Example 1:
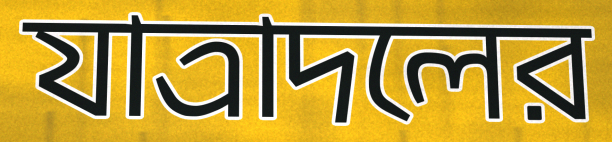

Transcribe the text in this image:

যাত্রাদলের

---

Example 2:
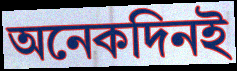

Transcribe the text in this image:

অনেকদিনই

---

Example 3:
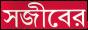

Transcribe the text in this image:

সজীবের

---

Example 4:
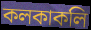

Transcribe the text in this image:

কলকাকলি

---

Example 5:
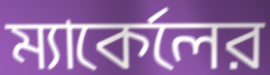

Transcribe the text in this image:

ম্যার্কেলের